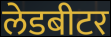
लेडबीटर